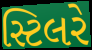
સ્ટિલરે